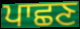
ਪਾਛਣ